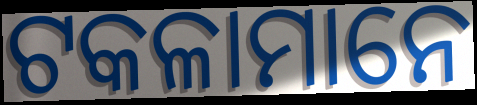
ଟକଳାମାନେ